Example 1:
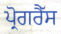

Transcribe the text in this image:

ਪ੍ਰੋਗਰੈੱਸ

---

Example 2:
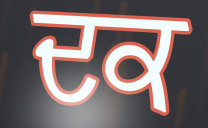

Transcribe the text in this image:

ਦਕ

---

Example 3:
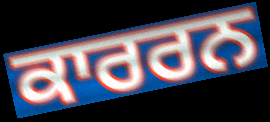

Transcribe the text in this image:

ਕਾਰਰਨ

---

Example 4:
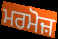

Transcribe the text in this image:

ਮਰਮੋਜ਼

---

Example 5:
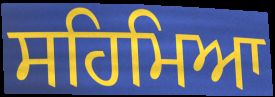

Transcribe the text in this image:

ਸਹਿਮਿਆ